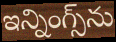
ఇన్నింగ్స్‌ను